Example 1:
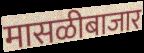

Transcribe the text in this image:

मासळीबाजार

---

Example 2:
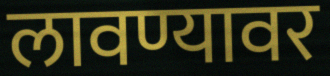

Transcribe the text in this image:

लावण्यावर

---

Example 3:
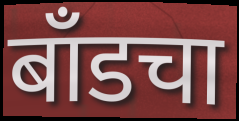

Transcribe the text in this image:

बाँडचा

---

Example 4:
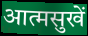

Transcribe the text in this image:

आत्मसुखें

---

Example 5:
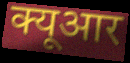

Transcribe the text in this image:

क्‍यूआर